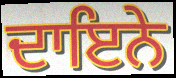
ਦਾਇਨੇ